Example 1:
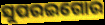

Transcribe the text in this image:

ସୁପରଇଗୋର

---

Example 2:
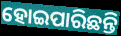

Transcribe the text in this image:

ହୋଇପାରିଛନ୍ତି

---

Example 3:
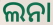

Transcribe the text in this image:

ଲନା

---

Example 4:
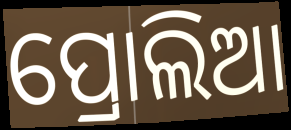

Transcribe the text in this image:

ପ୍ରୋଲିଆ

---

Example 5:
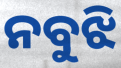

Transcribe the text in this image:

ନବୁଝି